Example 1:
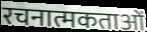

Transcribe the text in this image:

रचनात्मकताओं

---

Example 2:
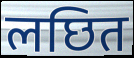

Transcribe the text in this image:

लछित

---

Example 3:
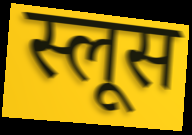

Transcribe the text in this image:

स्लूस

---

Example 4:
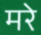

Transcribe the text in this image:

मरे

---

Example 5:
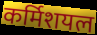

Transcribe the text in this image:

कर्मिशयल